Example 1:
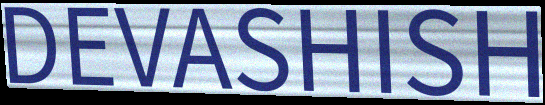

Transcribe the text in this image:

DEVASHISH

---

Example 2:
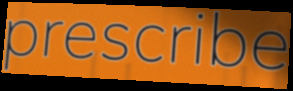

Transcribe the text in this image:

prescribe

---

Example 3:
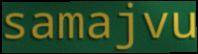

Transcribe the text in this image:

samajvu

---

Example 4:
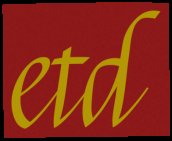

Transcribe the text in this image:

etd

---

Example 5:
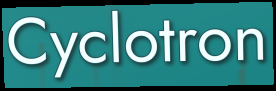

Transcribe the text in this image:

Cyclotron